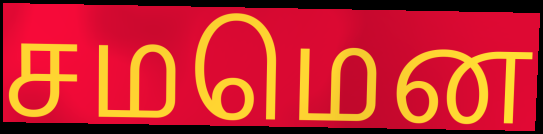
சமமென